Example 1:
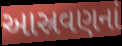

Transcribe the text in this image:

આસ્રવણનાં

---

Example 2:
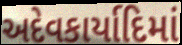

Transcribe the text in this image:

અદેવકાર્યાદિમાં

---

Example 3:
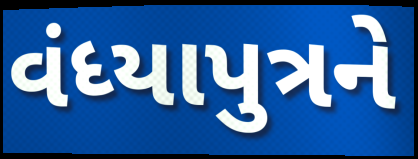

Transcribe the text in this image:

વંધ્યાપુત્રને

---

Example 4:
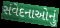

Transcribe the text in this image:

સંવેદનાઓનું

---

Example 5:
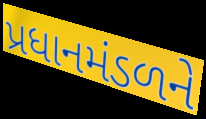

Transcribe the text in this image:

પ્રધાનમંડળને